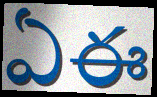
ఏఈ